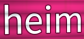
heim